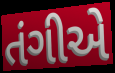
તંગીએ